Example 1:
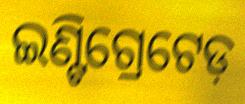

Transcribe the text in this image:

ଇଣ୍ଟିଗ୍ରେଟେଡ଼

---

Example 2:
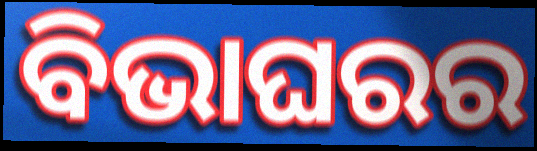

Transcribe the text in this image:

ବିଭାଘରର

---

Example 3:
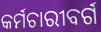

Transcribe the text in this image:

କର୍ମଚାରୀବର୍ଗ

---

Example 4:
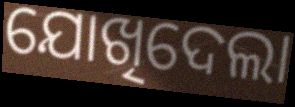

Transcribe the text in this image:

ଯୋଖିଦେଲା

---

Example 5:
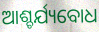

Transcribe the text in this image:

ଆଶ୍ଚର୍ଯ୍ୟବୋଧ